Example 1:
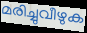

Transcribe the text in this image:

മരിച്ചുവീഴുക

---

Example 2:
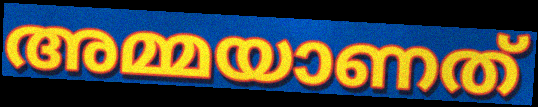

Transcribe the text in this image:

അമ്മയാണത്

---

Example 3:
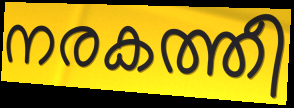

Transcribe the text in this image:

നരകത്തീ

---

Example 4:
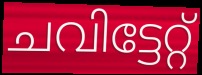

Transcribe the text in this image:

ചവിട്ടേറ്റ്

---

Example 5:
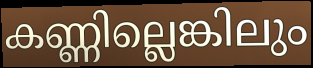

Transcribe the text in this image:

കണ്ണില്ലെങ്കിലും